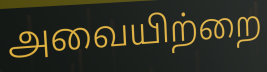
அவையிற்றை